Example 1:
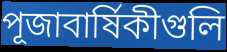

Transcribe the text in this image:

পূজাবার্ষিকীগুলি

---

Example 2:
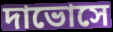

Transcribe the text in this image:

দাভোসে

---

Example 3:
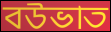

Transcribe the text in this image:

বউভাত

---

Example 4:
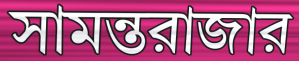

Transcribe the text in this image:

সামন্তরাজার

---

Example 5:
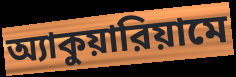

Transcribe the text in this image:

অ্যাকুয়ারিয়ামে